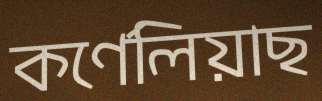
কৰ্ণেলিয়াছ